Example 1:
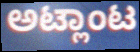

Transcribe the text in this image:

ಅಟ್ಲಾಂಟ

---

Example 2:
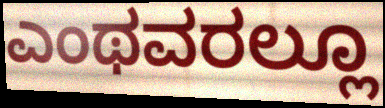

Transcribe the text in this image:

ಎಂಥವರಲ್ಲೂ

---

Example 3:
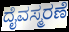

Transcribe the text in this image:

ದೈವಸ್ಮರಣೆ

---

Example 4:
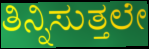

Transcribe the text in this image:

ತಿನ್ನಿಸುತ್ತಲೇ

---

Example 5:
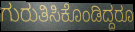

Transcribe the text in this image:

ಗುರುತಿಸಿಕೊಂಡಿದ್ದರೂ